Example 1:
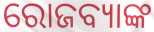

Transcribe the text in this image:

ରୋଜବ୍ୟାଙ୍କ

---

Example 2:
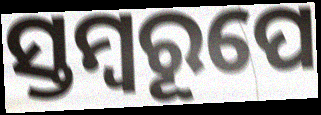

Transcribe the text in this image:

ସ୍ତମ୍ବରୂପେ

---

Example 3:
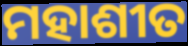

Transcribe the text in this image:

ମହାଶୀତ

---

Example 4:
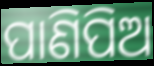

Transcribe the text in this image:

ପାଣିପିଅ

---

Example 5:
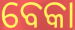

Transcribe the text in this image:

ବେକା